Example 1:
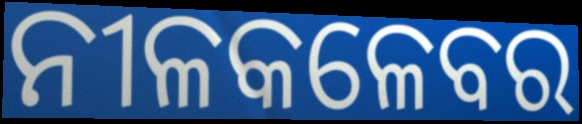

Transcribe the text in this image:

ନୀଳକଳେବର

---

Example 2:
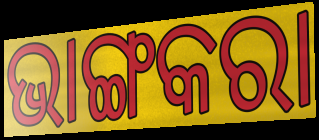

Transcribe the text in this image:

ଭାଙ୍ଗକରା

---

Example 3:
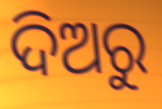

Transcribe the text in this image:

ଦିଅରୁ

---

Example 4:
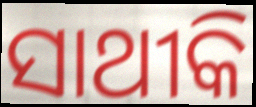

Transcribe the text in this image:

ସାଥୀକି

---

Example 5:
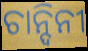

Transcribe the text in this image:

ଚାନ୍ଦିନୀ